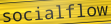
socialflow